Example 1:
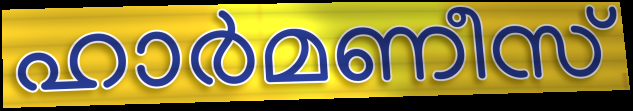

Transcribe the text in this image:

ഹാർമണീസ്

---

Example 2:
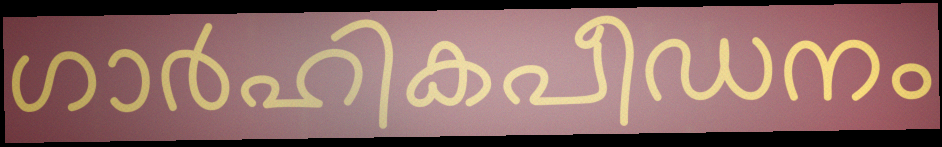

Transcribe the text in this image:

ഗാർഹികപീഡനം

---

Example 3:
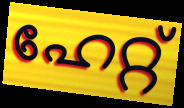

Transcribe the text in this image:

ഹേറ്റ്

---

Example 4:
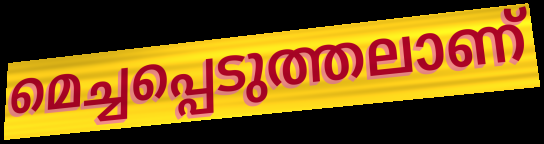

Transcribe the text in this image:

മെച്ചപ്പെടുത്തലാണ്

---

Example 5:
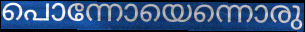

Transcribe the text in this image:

പൊന്നോയെന്നൊരു